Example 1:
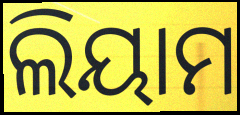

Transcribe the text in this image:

ଲିୟାମ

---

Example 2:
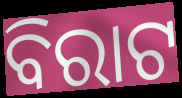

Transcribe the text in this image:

ବିରାଟ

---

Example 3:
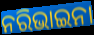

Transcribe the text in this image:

ନରିଭାଇନା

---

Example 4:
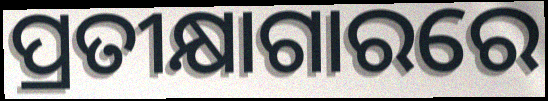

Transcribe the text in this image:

ପ୍ରତୀକ୍ଷାଗାରରେ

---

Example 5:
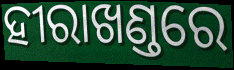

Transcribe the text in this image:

ହୀରାଖଣ୍ଡରେ